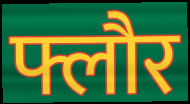
फ्लौर